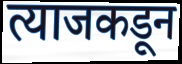
त्याजकडून